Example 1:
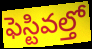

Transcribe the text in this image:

ఫెస్టివల్తో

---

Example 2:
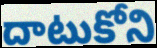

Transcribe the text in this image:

దాటుకోని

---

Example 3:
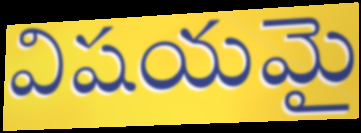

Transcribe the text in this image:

విషయమై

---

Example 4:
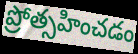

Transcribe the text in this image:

ప్రోత్సహించడం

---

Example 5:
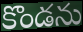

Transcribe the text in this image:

కొండను